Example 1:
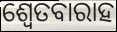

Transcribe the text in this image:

ଶ୍ଵେତବାରାହ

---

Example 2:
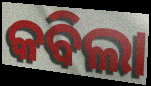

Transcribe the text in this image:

କବିଲା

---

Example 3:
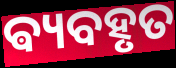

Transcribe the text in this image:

ଵ୍ୟବହୃତ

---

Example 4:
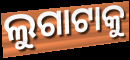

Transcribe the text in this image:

ଲୁଗାଟାକୁ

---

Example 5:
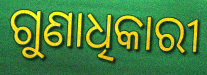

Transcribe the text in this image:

ଗୁଣାଧିକାରୀ